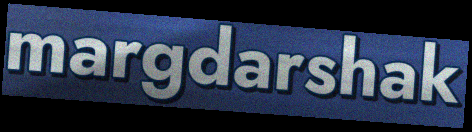
margdarshak